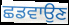
ਛਡਵਾਉਣ